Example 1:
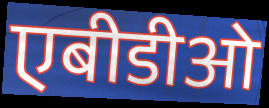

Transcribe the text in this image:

एबीडीओ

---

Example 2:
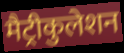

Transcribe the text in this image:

मैट्रीकुलेशन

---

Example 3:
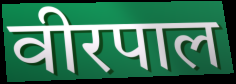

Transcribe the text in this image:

वीरपाल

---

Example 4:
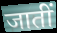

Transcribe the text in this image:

जातीं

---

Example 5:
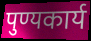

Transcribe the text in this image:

पुण्यकार्य